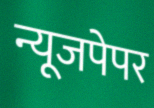
न्यूजपेपर